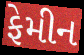
ફેમીન